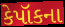
કેપૉકના